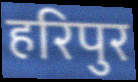
हरिपुर